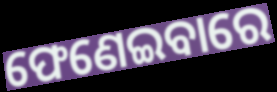
ଫେଣେଇବାରେ